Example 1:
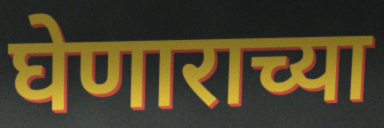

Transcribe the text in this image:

घेणाराच्या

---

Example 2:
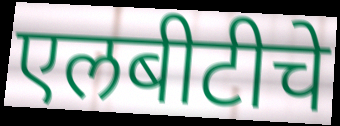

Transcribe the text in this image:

एलबीटीचे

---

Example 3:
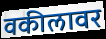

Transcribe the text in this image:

वकीलावर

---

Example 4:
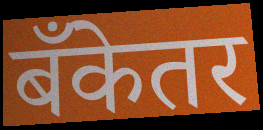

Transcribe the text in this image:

बँकेतर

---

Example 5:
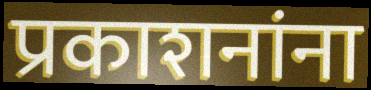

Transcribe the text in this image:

प्रकाशनांना